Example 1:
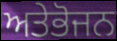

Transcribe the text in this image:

ਅਤੇਭੋਜਨ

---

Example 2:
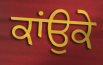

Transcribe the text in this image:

ਕਾਂਉਕੇ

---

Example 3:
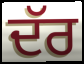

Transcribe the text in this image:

ਦੱਰ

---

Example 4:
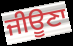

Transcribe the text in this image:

ਜੀਊਣਾ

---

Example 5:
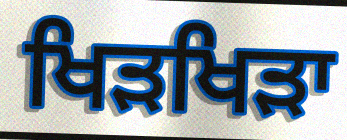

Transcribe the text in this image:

ਖਿੜਖਿੜਾ